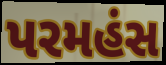
પરમહંસ